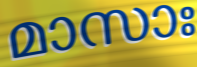
മാസാഃ